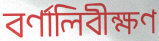
বর্ণালিবীক্ষণ